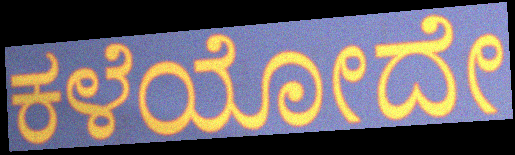
ಕಳೆಯೋದೇ